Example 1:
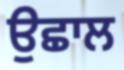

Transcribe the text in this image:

ਉਛਾਲ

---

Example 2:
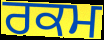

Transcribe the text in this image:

ਰਕਮ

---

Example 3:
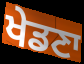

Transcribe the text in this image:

ਖੇਡਣਾ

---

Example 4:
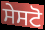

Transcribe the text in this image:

ਸੇਸਟੋ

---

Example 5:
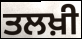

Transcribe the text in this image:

ਤਲਖ਼ੀ